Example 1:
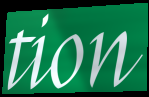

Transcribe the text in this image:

tion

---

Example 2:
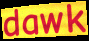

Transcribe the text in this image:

dawk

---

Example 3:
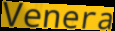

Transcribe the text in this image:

Venera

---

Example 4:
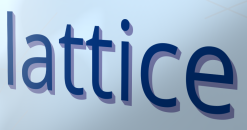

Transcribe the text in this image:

lattice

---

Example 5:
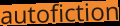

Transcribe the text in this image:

autofiction